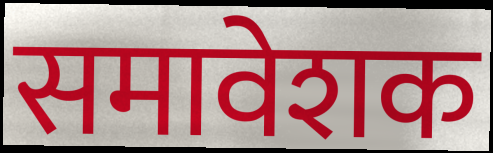
समावेशक